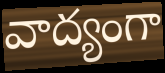
వాద్యంగా